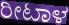
ರೀಟಾಳ